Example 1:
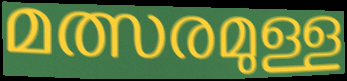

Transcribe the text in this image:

മത്സരമുള്ള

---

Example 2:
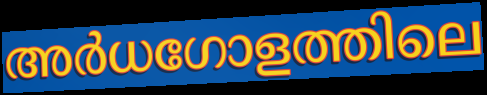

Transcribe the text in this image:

അർധഗോളത്തിലെ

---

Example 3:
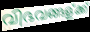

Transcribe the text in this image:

വിഭവങ്ങള്ക്ക്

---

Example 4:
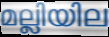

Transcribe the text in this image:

മല്ലിയില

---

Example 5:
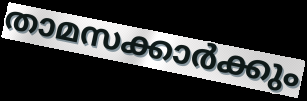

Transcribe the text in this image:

താമസക്കാർക്കും